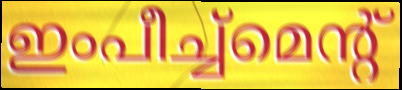
ഇംപീച്ച്മെന്റ്